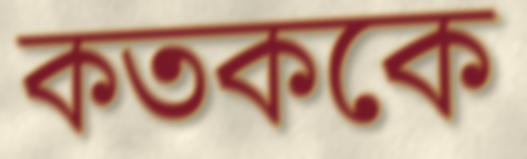
কতককে